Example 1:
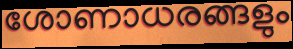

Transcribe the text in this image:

ശോണാധരങ്ങളും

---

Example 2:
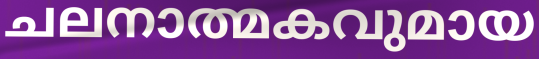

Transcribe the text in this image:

ചലനാത്മകവുമായ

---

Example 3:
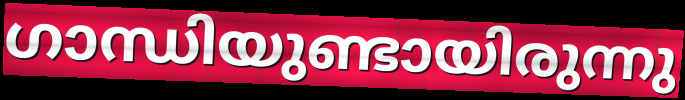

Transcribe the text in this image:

ഗാന്ധിയുണ്ടായിരുന്നു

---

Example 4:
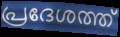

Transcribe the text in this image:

പ്രദേശത്ത്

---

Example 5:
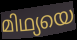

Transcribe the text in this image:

മിഥ്യയെ